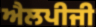
ਐਲਪੀਜੀ